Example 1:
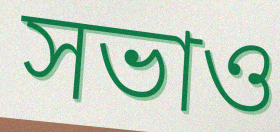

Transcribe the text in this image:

সভাও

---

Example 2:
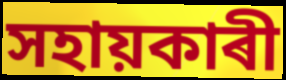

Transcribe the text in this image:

সহায়কাৰী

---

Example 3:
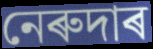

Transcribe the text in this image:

নেৰুদাৰ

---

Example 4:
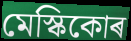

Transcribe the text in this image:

মেস্কিকোৰ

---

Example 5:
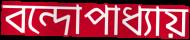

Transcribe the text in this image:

বন্দোপাধ্যায়